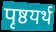
पृष्ठयर्थ